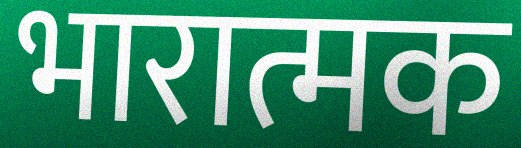
भारात्मक